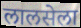
लालसेला